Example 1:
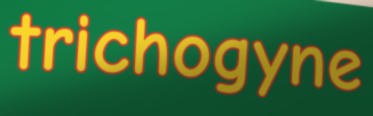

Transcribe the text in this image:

trichogyne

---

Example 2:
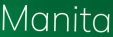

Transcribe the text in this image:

Manita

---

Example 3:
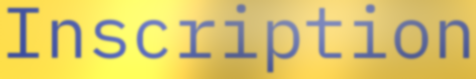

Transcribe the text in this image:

Inscription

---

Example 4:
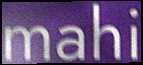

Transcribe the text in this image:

mahi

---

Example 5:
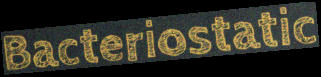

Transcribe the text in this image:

Bacteriostatic